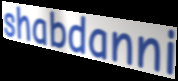
shabdanni